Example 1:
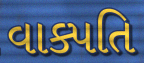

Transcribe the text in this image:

વાક્પતિ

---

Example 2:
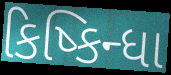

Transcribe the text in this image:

કિષ્કિન્ધા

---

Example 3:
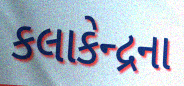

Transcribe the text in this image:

કલાકેન્દ્રના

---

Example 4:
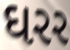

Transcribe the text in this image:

ઘરર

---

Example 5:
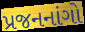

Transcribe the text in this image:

પ્રજનનાંગો